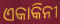
ଏକାକିନୀ